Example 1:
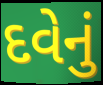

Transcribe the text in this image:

દવેનું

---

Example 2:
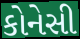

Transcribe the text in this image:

કોનેસી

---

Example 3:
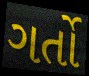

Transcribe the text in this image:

ગર્તો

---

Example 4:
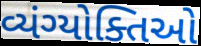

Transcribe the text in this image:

વ્યંગ્યોક્તિઓ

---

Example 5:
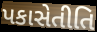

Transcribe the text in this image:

પકાસેતીતિ